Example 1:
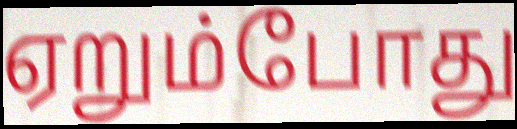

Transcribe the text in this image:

ஏறும்போது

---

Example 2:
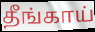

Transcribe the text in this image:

தீங்காய்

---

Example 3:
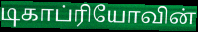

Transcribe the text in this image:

டிகாப்ரியோவின்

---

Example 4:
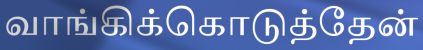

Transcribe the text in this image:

வாங்கிக்கொடுத்தேன்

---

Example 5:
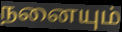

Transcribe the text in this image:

நனையும்